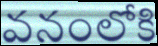
వనంలోకి